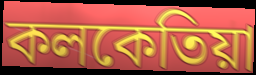
কলকেতিয়া